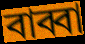
বাব্বা